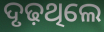
ଦୃଢ଼ଥିଲେ